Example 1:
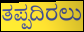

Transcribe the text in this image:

ತಪ್ಪದಿರಲು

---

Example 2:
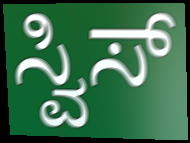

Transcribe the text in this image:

ಸ್ವಿಸ್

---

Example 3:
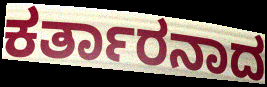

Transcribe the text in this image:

ಕರ್ತಾರನಾದ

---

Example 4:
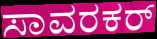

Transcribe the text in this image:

ಸಾವರಕರ್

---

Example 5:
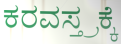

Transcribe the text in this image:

ಕರವಸ್ತ್ರಕ್ಕೆ